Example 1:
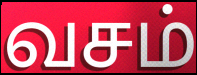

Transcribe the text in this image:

வசம்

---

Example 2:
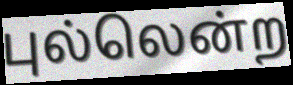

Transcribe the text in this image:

புல்லென்ற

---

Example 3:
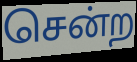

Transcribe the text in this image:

சென்ற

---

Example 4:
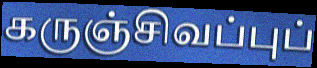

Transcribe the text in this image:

கருஞ்சிவப்புப்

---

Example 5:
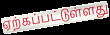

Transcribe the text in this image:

ஏற்கப்பட்டுள்ளது